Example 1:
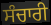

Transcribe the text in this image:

ਸੰਚਾਰੀ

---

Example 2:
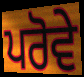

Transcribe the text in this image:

ਪਰੋਵੇ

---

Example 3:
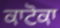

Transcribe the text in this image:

ਕਾਟੋਕਾ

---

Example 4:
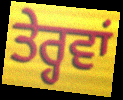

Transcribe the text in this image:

ਤੇਰ੍ਹਵਾਂ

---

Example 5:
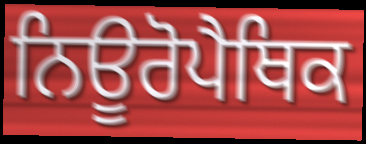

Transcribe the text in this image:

ਨਿਊਰੋਪੈਥਿਕ